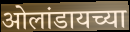
ओलांडायच्या